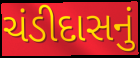
ચંડીદાસનું